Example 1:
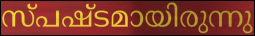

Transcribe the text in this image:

സ്പഷ്ടമായിരുന്നു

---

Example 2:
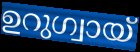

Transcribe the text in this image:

ഉറുഗ്വായ്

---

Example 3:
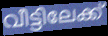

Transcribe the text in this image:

വീട്ടിലേക്ക്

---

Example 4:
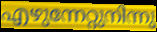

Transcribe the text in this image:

എഴുന്നേറ്റുനിന്നു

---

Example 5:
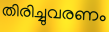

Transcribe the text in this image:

തിരിച്ചുവരണം